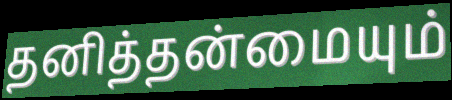
தனித்தன்மையும்